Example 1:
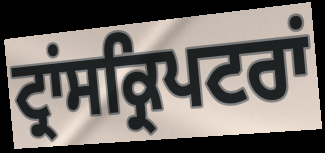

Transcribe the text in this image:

ਟ੍ਰਾਂਸਕ੍ਰਿਪਟਰਾਂ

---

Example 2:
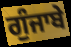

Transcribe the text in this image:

ਗੁੰਜਾਬੇ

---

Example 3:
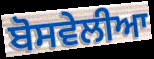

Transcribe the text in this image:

ਬੋਸਵੇਲੀਆ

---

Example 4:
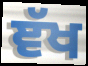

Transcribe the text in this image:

ਞੱਖ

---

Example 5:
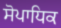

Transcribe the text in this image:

ਸੋਪਾਧਿਕ